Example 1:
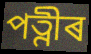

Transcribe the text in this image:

পত্নীৰ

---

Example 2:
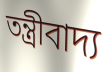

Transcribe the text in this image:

তন্ত্ৰীবাদ্য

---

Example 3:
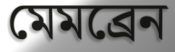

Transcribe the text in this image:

মেমব্ৰেন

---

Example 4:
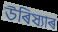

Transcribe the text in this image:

উৰিষ্যাৰ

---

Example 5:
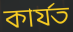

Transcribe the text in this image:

কাৰ্যত